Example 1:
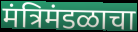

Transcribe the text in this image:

मंत्रिमंडळाचा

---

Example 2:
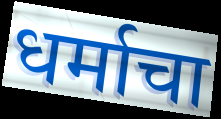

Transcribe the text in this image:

धर्माचा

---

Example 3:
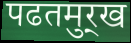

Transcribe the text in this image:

पढतमुर्ख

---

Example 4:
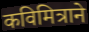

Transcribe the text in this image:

कविमित्राने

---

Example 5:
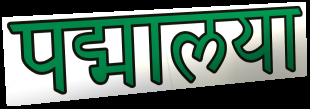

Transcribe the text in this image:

पद्मालया